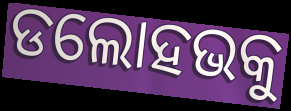
ଡଲୋହଭକୁ